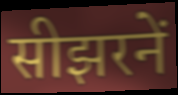
सीझरनें